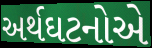
અર્થઘટનોએ